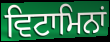
ਵਿਟਾਮਿਨਾਂ